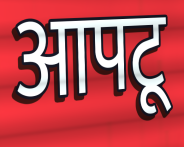
आपटू